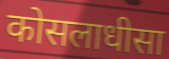
कोसलाधीसा